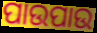
ପାଉପାଉ